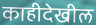
काहीदेखील